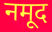
नमूद